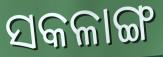
ସକଳାଙ୍ଗ